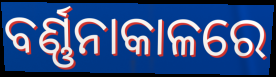
ବର୍ଣ୍ଣନାକାଳରେ